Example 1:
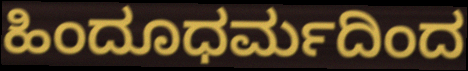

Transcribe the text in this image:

ಹಿಂದೂಧರ್ಮದಿಂದ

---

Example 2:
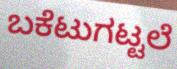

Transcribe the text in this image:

ಬಕೆಟುಗಟ್ಟಲೆ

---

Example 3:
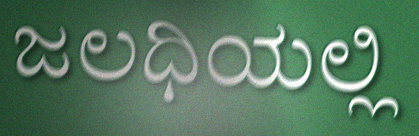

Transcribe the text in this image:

ಜಲಧಿಯಲ್ಲಿ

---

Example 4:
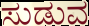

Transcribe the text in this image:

ಸುಡುವ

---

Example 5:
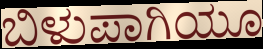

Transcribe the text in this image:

ಬಿಳುಪಾಗಿಯೂ